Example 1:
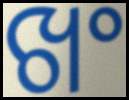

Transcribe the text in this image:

ଖଂ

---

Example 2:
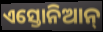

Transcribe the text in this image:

ଏସ୍ତୋନିଆନ୍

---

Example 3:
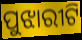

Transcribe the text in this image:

ପୁଝାରୀଟି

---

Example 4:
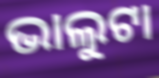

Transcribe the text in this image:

ଭାଲୁଟା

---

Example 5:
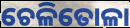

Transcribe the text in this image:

ଚେଳିତୋଳା